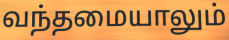
வந்தமையாலும்